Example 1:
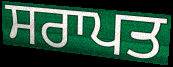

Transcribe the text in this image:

ਸਰਾਪਤ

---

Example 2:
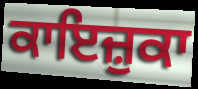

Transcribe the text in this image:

ਕਾਇਜ਼ੁਕਾ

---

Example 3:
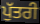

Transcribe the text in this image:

ਪੁੱਤਰੀ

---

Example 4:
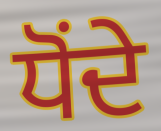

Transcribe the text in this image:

ਧੋਂਦੇ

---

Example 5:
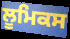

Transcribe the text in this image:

ਲੂਮਿਕਸ